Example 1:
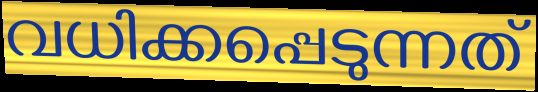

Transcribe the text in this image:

വധിക്കപ്പെടുന്നത്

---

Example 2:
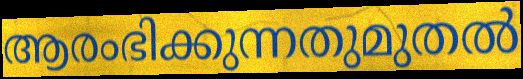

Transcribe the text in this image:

ആരംഭിക്കുന്നതുമുതൽ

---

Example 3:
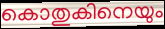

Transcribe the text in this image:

കൊതുകിനെയും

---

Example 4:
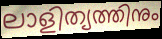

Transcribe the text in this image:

ലാളിത്യത്തിനും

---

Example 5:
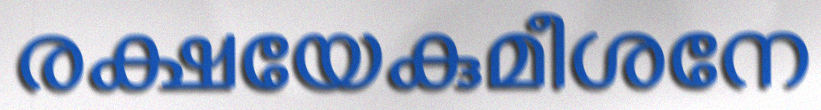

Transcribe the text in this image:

രക്ഷയേകുമീശനേ